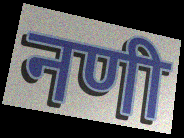
नणी